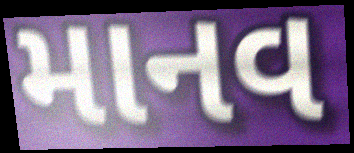
માનવ